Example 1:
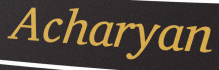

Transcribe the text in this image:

Acharyan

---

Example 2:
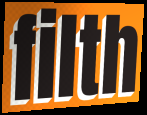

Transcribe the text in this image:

filth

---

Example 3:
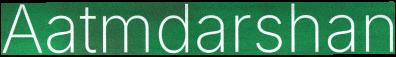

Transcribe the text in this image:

Aatmdarshan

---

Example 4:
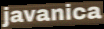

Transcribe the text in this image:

javanica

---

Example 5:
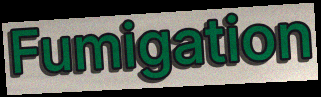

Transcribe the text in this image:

Fumigation